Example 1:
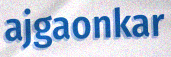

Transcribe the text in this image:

ajgaonkar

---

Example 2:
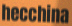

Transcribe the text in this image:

hecchina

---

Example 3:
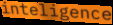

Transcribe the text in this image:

inteligence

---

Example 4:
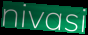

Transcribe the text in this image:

nivasi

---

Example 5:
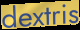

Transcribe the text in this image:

dextris